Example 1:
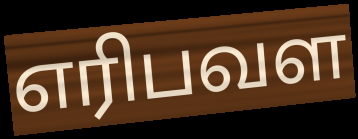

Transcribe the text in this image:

எரிபவள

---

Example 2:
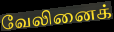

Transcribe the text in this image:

வேலினைக்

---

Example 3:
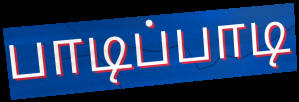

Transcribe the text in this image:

பாடிப்பாடி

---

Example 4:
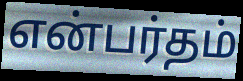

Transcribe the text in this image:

என்பர்தம்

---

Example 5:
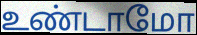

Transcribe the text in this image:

உண்டாமோ